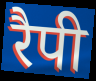
रैपी